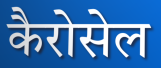
कैरोसेल